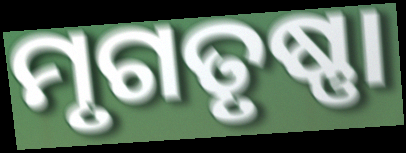
ମୃଗତୃଷ୍ଣା